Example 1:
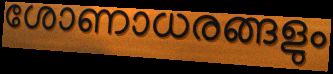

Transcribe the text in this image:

ശോണാധരങ്ങളും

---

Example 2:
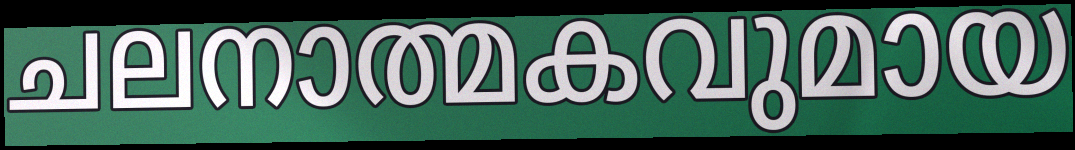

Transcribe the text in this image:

ചലനാത്മകവുമായ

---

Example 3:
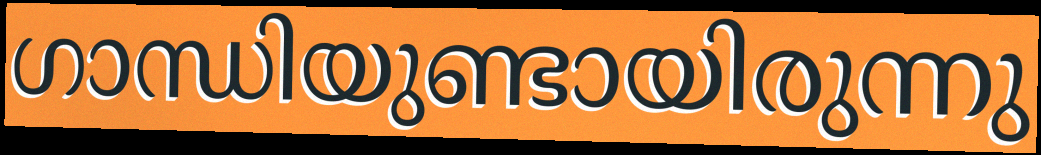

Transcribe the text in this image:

ഗാന്ധിയുണ്ടായിരുന്നു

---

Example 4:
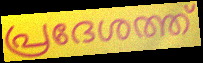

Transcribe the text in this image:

പ്രദേശത്ത്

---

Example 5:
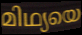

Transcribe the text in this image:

മിഥ്യയെ